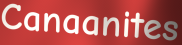
Canaanites